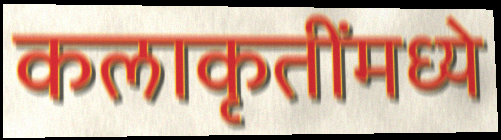
कलाकृतींमध्ये